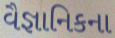
વૈજ્ઞાનિકના